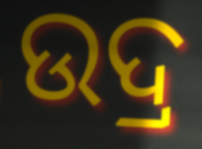
ଉଦ୍ର